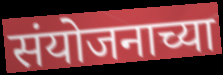
संयोजनाच्या